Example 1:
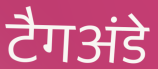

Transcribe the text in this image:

टैगअंडे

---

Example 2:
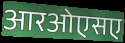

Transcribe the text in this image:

आरओएसए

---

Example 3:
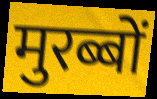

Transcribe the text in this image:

मुरब्बों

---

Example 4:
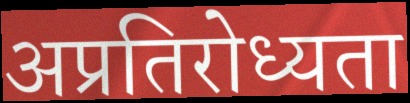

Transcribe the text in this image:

अप्रतिरोध्यता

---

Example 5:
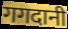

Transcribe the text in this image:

गगदानी